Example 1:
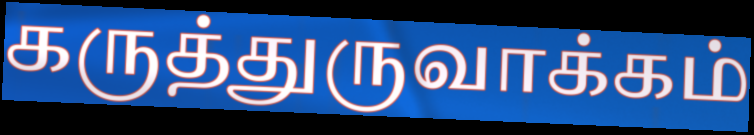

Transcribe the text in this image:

கருத்துருவாக்கம்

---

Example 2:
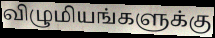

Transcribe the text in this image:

விழுமியங்களுக்கு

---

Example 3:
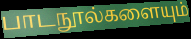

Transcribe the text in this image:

பாடநூல்களையும்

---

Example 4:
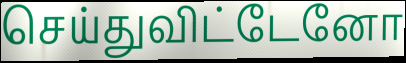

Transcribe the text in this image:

செய்துவிட்டேனோ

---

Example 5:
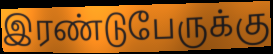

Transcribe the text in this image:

இரண்டுபேருக்கு